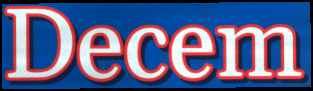
Decem